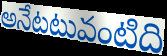
అనేటటువంటిది